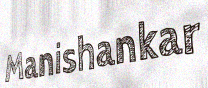
Manishankar